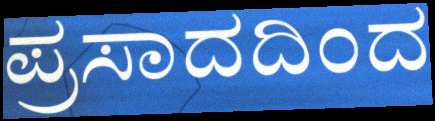
ಪ್ರಸಾದದಿಂದ